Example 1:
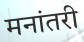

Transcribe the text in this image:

मनांतरी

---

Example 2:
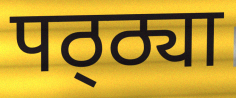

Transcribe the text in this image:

पठ्ठ्या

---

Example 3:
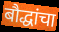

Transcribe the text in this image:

बौद्धांचा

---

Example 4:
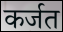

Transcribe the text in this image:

कर्जत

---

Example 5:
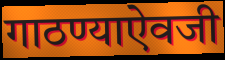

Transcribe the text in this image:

गाठण्याऐवजी